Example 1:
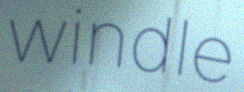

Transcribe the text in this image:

windle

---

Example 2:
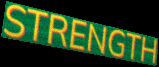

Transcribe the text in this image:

STRENGTH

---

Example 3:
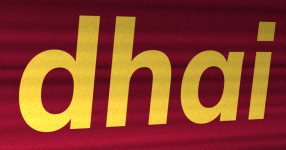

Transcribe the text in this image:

dhai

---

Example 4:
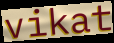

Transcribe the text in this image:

vikat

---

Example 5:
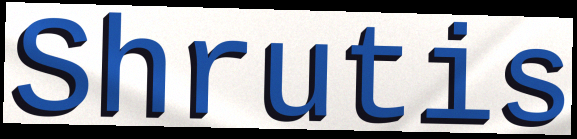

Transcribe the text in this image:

Shrutis